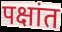
पक्षांत